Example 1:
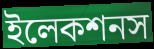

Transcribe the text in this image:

ইলেকশনস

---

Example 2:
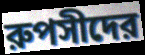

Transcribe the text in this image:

রুপসীদের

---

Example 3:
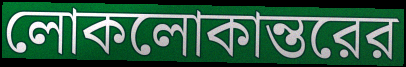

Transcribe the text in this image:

লোকলোকান্তরের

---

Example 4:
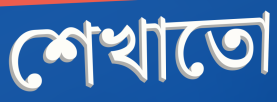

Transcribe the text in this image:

শেখাতো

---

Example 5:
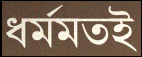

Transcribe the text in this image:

ধর্মমতই